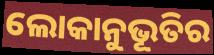
ଲୋକାନୁଭୂତିର